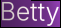
Betty